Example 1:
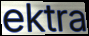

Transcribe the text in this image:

ektra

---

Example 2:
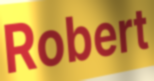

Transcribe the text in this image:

Robert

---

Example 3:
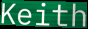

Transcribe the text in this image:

Keith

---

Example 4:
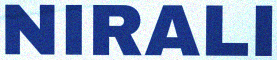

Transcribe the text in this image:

NIRALI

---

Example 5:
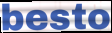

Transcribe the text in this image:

besto